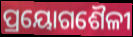
ପ୍ରୟୋଗଶୈଳୀ